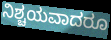
ನಿಶ್ಚಯವಾದರೂ